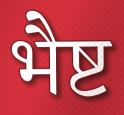
भैष्ट